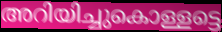
അറിയിച്ചുകൊള്ളട്ടെ